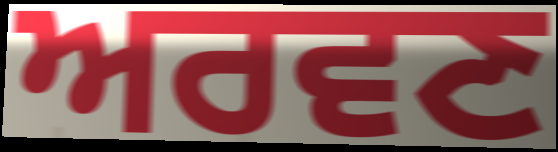
ਅਰਵਣ